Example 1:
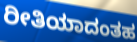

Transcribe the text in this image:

ರೀತಿಯಾದಂತಹ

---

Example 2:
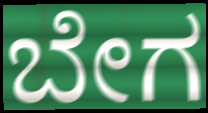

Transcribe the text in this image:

ಬೇಗ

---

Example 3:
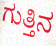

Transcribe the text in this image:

ಗುತ್ತಿನ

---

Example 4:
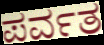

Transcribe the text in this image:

ಪರ್ವತ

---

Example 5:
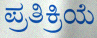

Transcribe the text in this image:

ಪ್ರತಿಕ್ರಿಯೆ